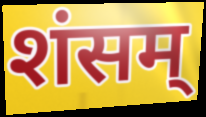
शंसम्